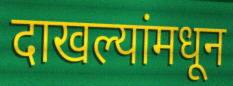
दाखल्यांमधून